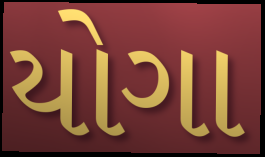
યોગા